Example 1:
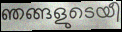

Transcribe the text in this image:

ഞങ്ങളുടെയീ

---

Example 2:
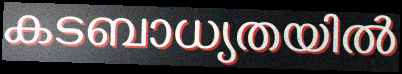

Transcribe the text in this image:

കടബാധ്യതയിൽ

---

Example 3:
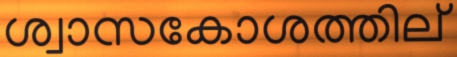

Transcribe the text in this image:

ശ്വാസകോശത്തില്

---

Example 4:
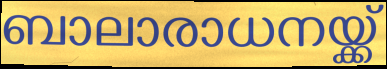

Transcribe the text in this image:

ബാലാരാധനയ്ക്ക്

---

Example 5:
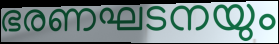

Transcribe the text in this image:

ഭരണഘടനയും